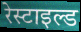
रेस्टाइल्ड